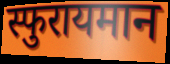
स्फुरायमान